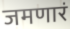
जमणारं